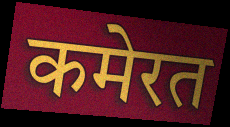
कमेरत